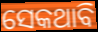
ସେକଥାବି